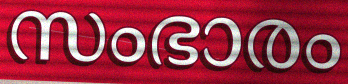
സംഭാരം